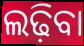
ଲଢ଼ିବା